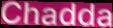
Chadda